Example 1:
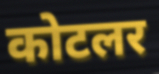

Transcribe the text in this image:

कोटलर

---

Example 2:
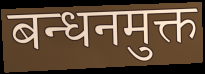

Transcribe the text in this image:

बन्धनमुक्त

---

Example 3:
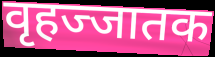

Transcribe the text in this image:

वृहज्जातक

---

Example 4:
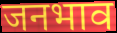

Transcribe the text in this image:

जनभाव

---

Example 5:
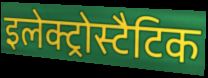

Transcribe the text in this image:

इलेक्ट्रोस्टैटिक